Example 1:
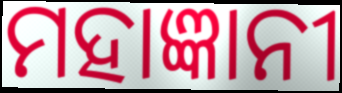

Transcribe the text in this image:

ମହାଜ୍ଞାନୀ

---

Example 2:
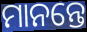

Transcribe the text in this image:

ମାନନ୍ତେ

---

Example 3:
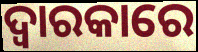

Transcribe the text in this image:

ଦ୍ବାରକାରେ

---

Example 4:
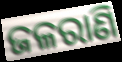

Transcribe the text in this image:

ଜଳରାଣି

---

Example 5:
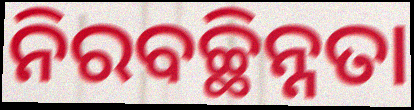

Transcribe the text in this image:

ନିରବଚ୍ଛିନ୍ନତା